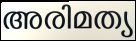
അരിമത്യ